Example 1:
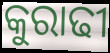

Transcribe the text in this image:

କୁରାଢୀ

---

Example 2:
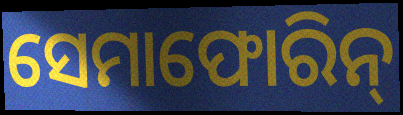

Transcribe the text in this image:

ସେମାଫୋରିନ୍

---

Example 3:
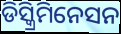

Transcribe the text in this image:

ଡିସ୍କ୍ରିମିନେସନ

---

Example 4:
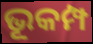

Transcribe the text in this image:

ଭୂକମ୍ପ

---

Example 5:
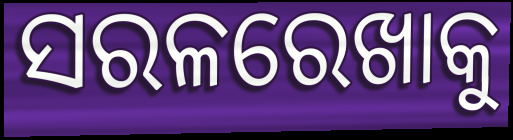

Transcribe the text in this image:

ସରଳରେଖାକୁ